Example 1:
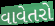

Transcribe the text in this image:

વાવેતરો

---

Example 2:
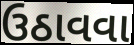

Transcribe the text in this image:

ઉઠાવવા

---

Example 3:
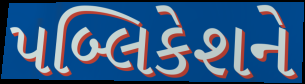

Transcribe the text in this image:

પબ્લિકેશને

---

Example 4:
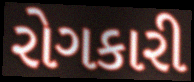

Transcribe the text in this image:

રોગકારી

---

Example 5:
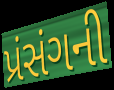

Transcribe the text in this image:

પ્રંસંગની